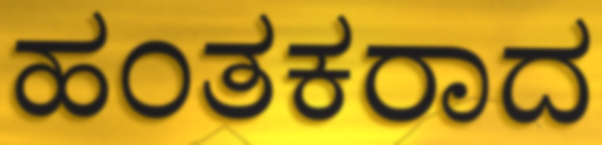
ಹಂತಕರಾದ